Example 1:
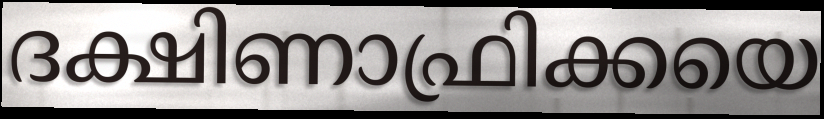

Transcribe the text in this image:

ദക്ഷിണാഫ്രിക്കയെ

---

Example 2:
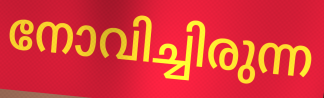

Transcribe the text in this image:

നോവിച്ചിരുന്ന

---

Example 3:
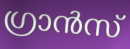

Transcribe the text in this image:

ഗ്രാൻസ്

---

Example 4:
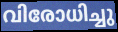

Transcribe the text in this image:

വിരോധിച്ചു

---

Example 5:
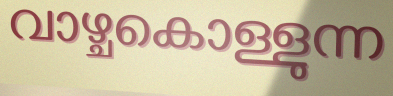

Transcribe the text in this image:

വാഴ്ചകൊള്ളുന്ന